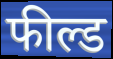
फील्ड